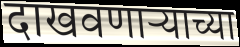
दाखवणाऱ्याच्या